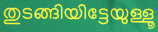
തുടങ്ങിയിട്ടേയുള്ളൂ